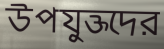
উপযুক্তদের